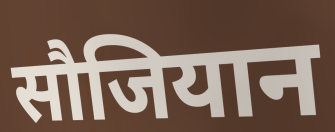
सौजियान